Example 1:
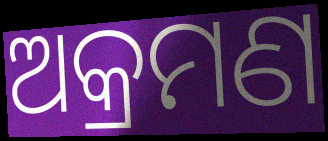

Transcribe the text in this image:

ଅକ୍ରମଣ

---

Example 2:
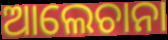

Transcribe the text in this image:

ଆଲେଚାନା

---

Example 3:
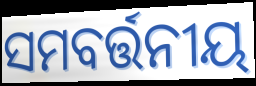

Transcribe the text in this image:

ସମବର୍ତ୍ତନୀୟ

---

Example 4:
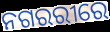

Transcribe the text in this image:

ନଗରରୀରେ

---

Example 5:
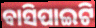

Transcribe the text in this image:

ବାସିପାଇଟି